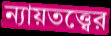
ন্যায়তত্ত্বের